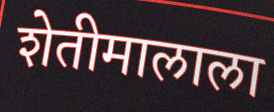
शेतीमालाला